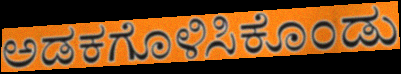
ಅಡಕಗೊಳಿಸಿಕೊಂಡು